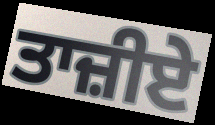
ਤਾਜ਼ੀਏ